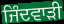
ਜਿੰਦਵਾੜੀ